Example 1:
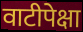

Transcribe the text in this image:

वाटीपेक्षा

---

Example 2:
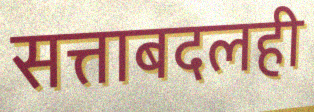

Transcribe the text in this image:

सत्ताबदलही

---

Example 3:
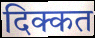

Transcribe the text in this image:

दिक्कत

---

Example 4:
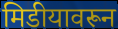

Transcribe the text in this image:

मिडीयावरून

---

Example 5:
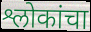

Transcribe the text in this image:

श्लोकांचा